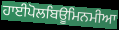
ਹਾਈਪੋਲਬਿਊਮਿਨਮੀਆ